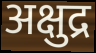
अक्षुद्र